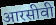
आरसीवी